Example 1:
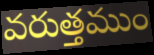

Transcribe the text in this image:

వరుత్తముం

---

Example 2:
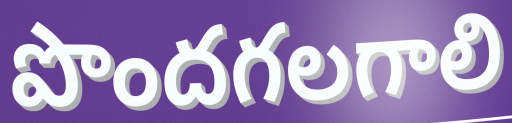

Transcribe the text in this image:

పొందగలగాలి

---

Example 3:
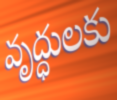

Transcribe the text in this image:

వృద్ధులకు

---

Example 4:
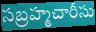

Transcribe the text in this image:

సబ్రహ్మచారీసు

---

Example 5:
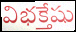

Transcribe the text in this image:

విభక్తేషు